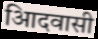
आिदवासी